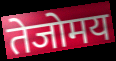
तेजोमय